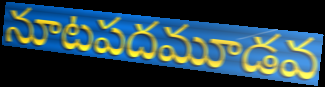
నూటపదమూడవ